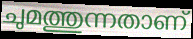
ചുമത്തുന്നതാണ്